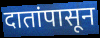
दातांपासून